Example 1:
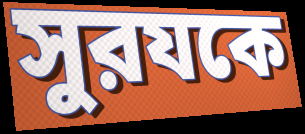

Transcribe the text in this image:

সুরযকে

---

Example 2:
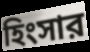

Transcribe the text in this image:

হিংসার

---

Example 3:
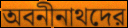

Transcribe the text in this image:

অবনীনাথদের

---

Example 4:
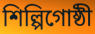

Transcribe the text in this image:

শিল্পিগোষ্ঠী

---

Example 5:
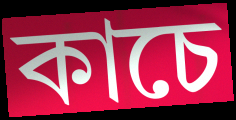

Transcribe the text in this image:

কাচে